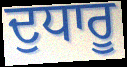
ਦੁਧਾਰੂ